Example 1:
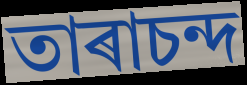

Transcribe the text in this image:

তাৰাচন্দ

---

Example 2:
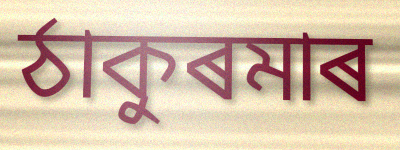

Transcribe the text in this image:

ঠাকুৰমাৰ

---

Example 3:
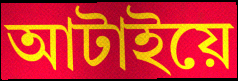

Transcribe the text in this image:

আটাইয়ে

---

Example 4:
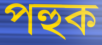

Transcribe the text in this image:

পহুক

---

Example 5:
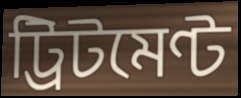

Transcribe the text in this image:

ট্ৰিটমেণ্ট